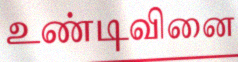
உண்டிவினை